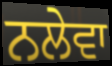
ਨਲੇਵਾ